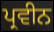
ਪ੍ਰਵੀਨ